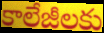
కాలేజీలకు